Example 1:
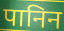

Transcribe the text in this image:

पानिन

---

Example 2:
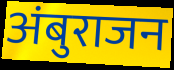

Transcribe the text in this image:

अंबुराजन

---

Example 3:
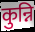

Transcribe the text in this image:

कुन्नि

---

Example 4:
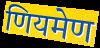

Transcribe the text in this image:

णियमेण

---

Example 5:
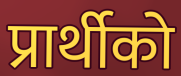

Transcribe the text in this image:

प्रार्थीको